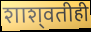
शाश्वतीही